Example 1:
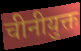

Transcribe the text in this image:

चीनीयुक्त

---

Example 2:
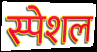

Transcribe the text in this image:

स्‍पेशल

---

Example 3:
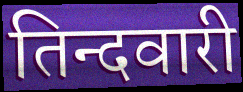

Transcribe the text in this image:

तिन्दवारी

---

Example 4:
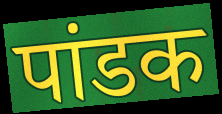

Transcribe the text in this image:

पांडक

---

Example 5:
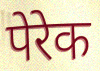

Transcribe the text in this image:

पेरेक